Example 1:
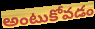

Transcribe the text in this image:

అంటుకోవడం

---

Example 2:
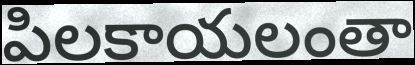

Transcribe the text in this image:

పిలకాయలంతా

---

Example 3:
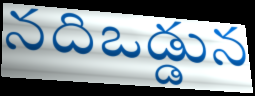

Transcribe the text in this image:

నదిఒడ్డున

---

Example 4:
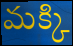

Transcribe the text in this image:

మక్కి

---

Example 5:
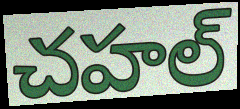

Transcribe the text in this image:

చహల్